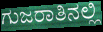
ಗುಜರಾತಿನಲ್ಲಿ